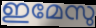
ഇമേസു